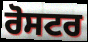
ਰੋਸਟਰ